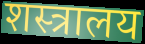
शस्त्रालय